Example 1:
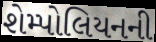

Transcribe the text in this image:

શેમ્પોલિયનની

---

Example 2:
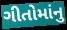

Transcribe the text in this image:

ગીતોમાંનુ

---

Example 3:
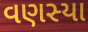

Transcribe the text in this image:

વણસ્યા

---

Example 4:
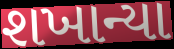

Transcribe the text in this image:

શખાન્યા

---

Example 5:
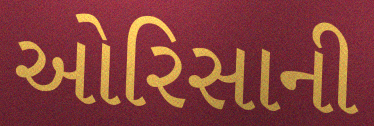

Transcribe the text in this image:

ઓરિસાની